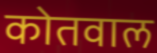
कोतवाल